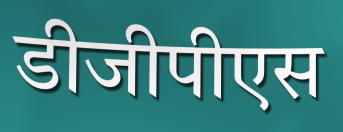
डीजीपीएस